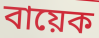
বায়েক